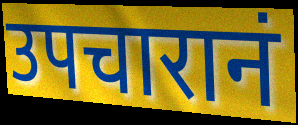
उपचारानं